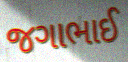
જગાભાઈ